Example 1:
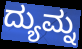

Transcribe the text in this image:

ದ್ಯುಮ್ನ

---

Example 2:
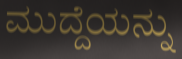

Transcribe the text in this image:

ಮುದ್ದೆಯನ್ನು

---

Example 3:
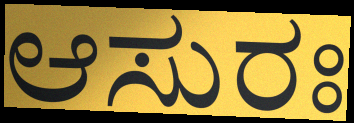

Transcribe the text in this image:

ಆಸುರಃ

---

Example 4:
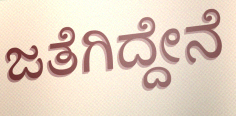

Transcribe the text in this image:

ಜತೆಗಿದ್ದೇನೆ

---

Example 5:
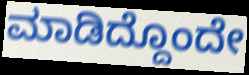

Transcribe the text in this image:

ಮಾಡಿದ್ದೊಂದೇ